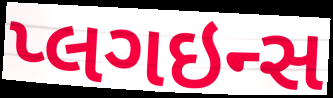
પ્લગઇન્સ